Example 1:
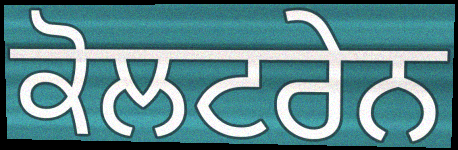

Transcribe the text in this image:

ਕੋਲਟਰੇਨ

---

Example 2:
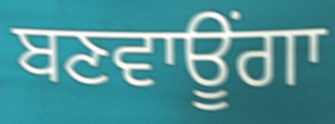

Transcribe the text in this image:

ਬਣਵਾਊਂਗਾ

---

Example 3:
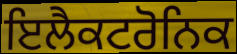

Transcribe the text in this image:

ਇਲੈਕਟਰੋਨਿਕ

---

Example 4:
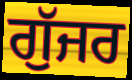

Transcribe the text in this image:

ਗੁੱਜਰ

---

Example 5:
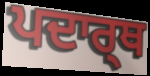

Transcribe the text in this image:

ਪਦਾਰ੍ਥ